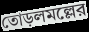
তোড়লমল্লের